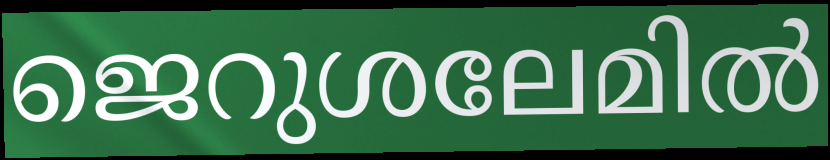
ജെറുശലേമിൽ